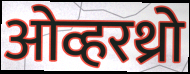
ओव्हरथ्रो